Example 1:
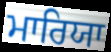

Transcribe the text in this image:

ਮਾਰਿਯਾ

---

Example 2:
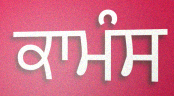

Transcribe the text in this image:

ਕਾਮੰਸ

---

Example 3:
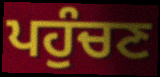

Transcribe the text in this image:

ਪਹੁੰਚਣ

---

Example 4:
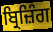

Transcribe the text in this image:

ਬ੍ਰਿਜ਼ਿੰਗ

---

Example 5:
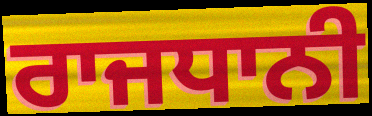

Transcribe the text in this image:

ਰਾਜਧਾਨੀ